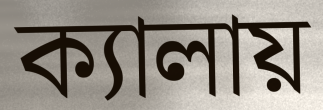
ক্যালায়